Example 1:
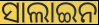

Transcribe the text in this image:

ସାଲାଇନ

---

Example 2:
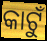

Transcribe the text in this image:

କାଟୁଁ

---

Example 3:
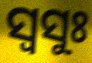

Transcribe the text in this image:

ସ୍ଵସୁଃ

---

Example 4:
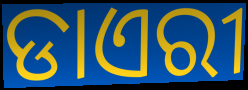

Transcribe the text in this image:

ଡାଏରୀ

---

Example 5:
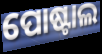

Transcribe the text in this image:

ପୋଷ୍ଟାଲ